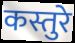
कस्तुरे